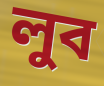
লুব